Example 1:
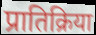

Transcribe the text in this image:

प्रातिक्रिया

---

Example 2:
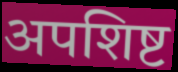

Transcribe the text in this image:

अपशिष्ट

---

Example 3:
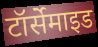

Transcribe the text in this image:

टॉर्सेमाइड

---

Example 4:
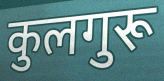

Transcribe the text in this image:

कुलगुरू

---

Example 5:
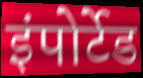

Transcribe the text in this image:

इंपोर्टेड